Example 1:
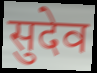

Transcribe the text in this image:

सुदेव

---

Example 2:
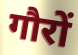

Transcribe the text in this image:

गौरों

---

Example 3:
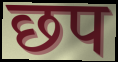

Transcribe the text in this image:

छप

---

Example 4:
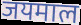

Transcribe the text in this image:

जयमाल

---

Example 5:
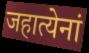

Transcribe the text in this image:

जहात्येनां